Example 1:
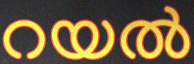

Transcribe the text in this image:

റയൽ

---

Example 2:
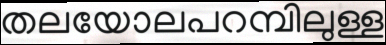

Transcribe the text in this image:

തലയോലപറമ്പിലുള്ള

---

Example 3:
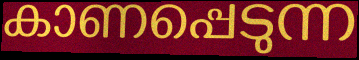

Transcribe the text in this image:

കാണപ്പെടുന്ന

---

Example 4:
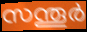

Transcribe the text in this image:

സന്തൂർ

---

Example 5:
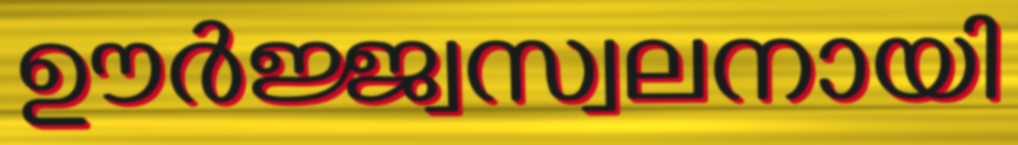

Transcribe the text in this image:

ഊർജ്ജ്വസ്വലനായി